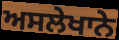
ਅਸਲੇਖਾਨੇ